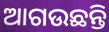
ଆଗଉଛନ୍ତି